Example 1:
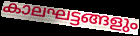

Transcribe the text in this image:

കാലഘട്ടങ്ങളും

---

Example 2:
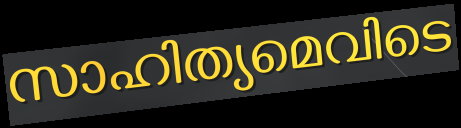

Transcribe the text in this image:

സാഹിത്യമെവിടെ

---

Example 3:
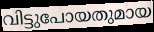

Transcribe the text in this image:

വിട്ടുപോയതുമായ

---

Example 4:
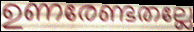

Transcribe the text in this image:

ഉണരേണ്ടതല്ലേ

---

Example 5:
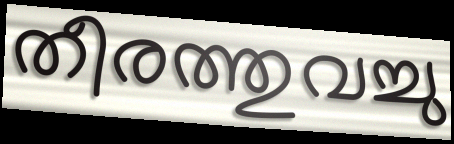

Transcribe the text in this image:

തീരത്തുവച്ചു